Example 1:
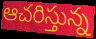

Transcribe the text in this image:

ఆచరిస్తున్న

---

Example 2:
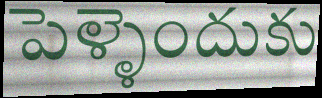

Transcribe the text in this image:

పెళ్ళెందుకు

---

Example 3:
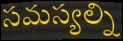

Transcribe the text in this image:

సమస్యల్ని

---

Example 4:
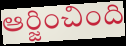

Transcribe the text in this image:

ఆర్జించింది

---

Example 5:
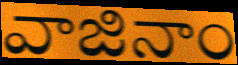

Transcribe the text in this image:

వాజినాం